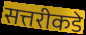
सत्तरीकडे